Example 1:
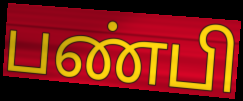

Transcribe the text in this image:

பண்பி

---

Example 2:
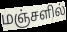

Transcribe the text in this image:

மஞ்சளில்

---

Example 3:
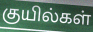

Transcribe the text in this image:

குயில்கள்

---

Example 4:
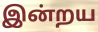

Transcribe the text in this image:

இன்றய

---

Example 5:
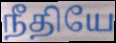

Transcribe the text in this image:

நீதியே